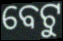
ବେଟୁ